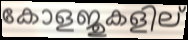
കോളജുകളില്